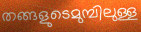
തങ്ങളുടെമുമ്പിലുള്ള